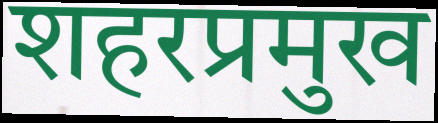
शहरप्रमुख